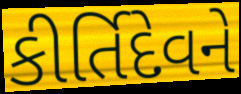
કીર્તિદેવને